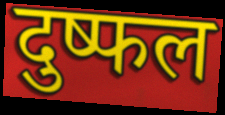
दुष्फल